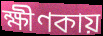
ক্ষীণকায়